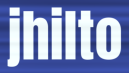
jhilto